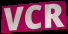
VCR